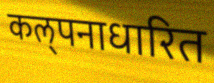
कल्पनाधारित